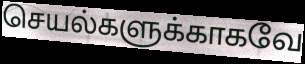
செயல்களுக்காகவே